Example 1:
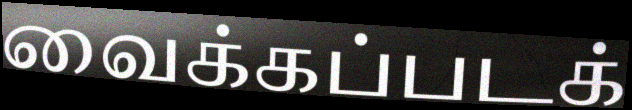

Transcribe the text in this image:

வைக்கப்படக்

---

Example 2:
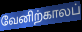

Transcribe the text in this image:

வேனிற்காலப்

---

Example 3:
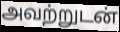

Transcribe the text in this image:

அவற்றுடன்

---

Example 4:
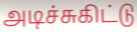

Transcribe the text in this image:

அடிச்சுகிட்டு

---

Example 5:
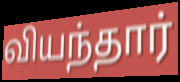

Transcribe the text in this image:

வியந்தார்